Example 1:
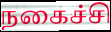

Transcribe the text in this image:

நகைச்சி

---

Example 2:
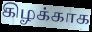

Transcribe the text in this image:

கிழக்காக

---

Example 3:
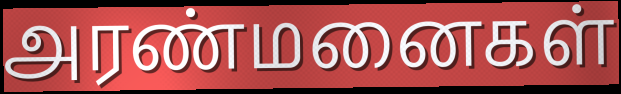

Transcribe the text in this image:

அரண்மனைகள்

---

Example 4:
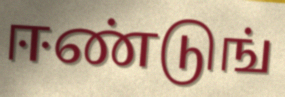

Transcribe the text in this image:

ஈண்டுங்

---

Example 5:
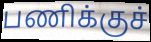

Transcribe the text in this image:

பணிக்குச்